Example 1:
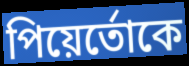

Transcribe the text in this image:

পিয়ের্তোকে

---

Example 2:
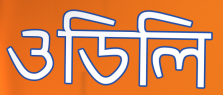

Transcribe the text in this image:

ওডিলি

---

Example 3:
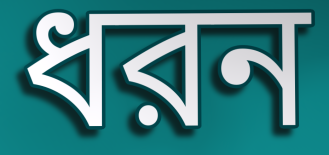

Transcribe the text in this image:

ধরন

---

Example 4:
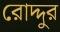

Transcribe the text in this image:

রোদ্দুর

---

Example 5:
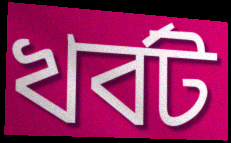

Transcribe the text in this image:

খর্বট